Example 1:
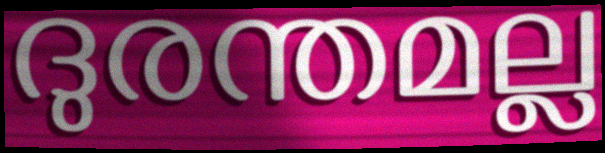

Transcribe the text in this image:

ദുരന്തമല്ല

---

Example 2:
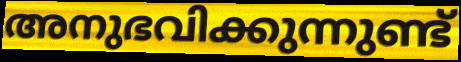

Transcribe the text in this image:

അനുഭവിക്കുന്നുണ്ട്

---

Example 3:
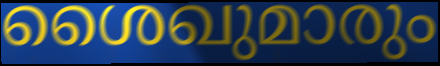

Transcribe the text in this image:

ശൈഖുമാരും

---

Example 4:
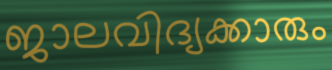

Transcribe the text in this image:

ജാലവിദ്യക്കാരും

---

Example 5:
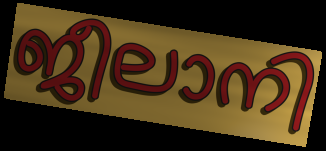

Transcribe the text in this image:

ജീലാനി